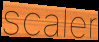
scaler